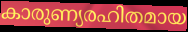
കാരുണ്യരഹിതമായ